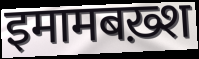
इमामबख़्श